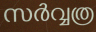
സർവ്വത്ര